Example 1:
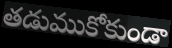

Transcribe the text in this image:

తడుముకోకుండా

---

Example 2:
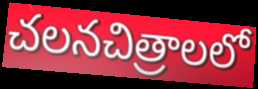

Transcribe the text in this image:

చలనచిత్రాలలో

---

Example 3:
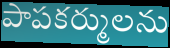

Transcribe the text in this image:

పాపకర్ములను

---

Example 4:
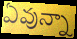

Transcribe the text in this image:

ఏవున్నా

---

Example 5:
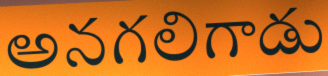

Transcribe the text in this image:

అనగలిగాడు